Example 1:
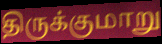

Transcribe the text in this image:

திருக்குமாறு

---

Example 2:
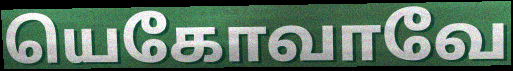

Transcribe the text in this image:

யெகோவாவே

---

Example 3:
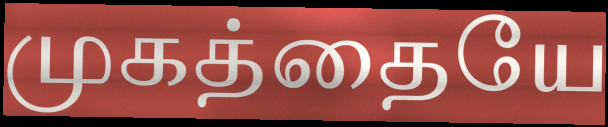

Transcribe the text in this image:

முகத்தையே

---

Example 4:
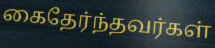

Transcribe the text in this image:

கைதேர்ந்தவர்கள்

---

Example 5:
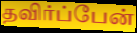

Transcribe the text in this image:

தவிர்ப்பேன்